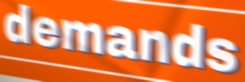
demands